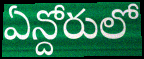
ఏన్దోరులో